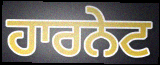
ਹਾਰਨੇਟ